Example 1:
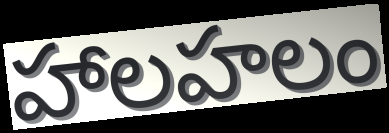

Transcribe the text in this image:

హాలహలం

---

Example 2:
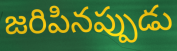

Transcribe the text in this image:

జరిపినప్పుడు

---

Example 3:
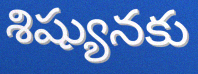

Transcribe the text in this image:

శిష్యునకు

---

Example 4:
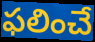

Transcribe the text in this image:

ఫలించే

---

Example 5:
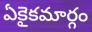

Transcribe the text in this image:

ఏకైకమార్గం